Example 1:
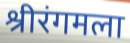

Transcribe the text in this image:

श्रीरंगमला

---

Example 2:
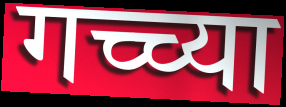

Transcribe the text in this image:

गच्च्या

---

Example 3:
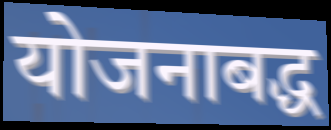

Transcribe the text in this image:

योजनाबद्ध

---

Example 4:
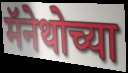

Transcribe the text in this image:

मॅनेथोच्या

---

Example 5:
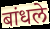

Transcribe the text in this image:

बांधले